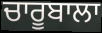
ਚਾਰੂਬਾਲਾ